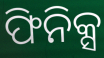
ଫିନିକ୍ସ